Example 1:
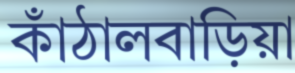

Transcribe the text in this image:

কাঁঠালবাড়িয়া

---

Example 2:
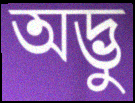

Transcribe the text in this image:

অদ্ভু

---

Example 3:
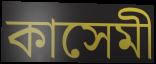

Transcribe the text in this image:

কাসেমী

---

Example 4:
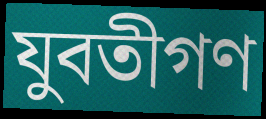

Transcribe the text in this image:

যুবতীগণ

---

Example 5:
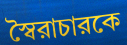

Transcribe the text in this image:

স্বৈরাচারকে